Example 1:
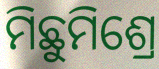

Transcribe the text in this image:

ମିଛୁମିଶ୍ରେ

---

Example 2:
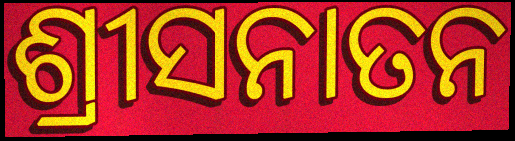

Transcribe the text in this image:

ଶ୍ରୀସନାତନ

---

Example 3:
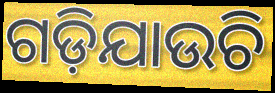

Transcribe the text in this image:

ଗଡ଼ିଯାଉଚି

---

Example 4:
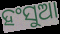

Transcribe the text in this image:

ହଂସୁଆ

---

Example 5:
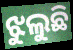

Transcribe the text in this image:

ଝୁଲୁଛି